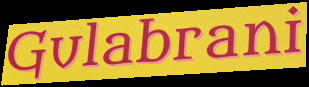
Gulabrani